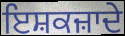
ਇਸ਼ਕਜ਼ਾਦੇ